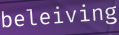
beleiving